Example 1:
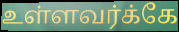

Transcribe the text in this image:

உள்ளவர்க்கே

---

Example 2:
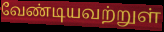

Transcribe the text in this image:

வேண்டியவற்றுள்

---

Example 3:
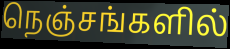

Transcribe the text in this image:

நெஞ்சங்களில்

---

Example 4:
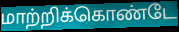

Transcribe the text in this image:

மாற்றிக்கொண்டே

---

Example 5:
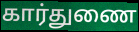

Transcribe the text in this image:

கார்துணை